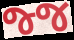
જ્જ